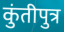
कुंतीपुत्र